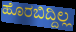
ಹೊರಬಿದ್ದಿಲ್ಲ